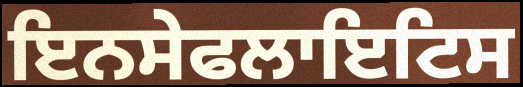
ਇਨਸੇਫਲਾਇਟਿਸ